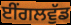
ਈਂਗਲਵੁੱਡ